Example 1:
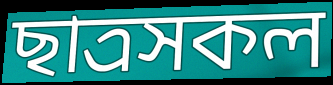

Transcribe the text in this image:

ছাত্ৰসকল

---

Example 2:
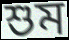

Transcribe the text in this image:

শুম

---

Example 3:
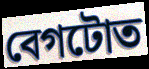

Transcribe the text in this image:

বেগটোত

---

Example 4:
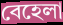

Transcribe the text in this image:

বেহেলা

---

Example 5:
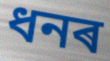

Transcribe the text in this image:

ধনৰ